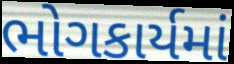
ભોગકાર્યમાં